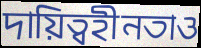
দায়িত্বহীনতাও